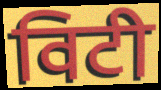
विटी